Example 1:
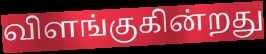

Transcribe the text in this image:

விளங்குகின்றது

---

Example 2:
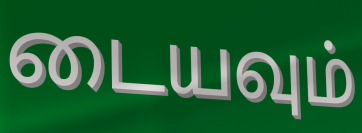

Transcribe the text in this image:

டையவும்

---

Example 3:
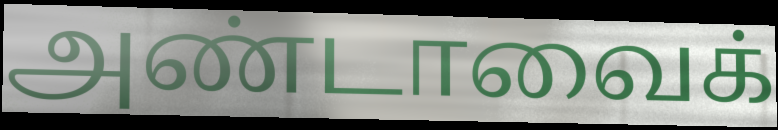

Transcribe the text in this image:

அண்டாவைக்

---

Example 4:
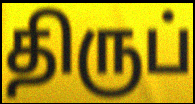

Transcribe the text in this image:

திருப்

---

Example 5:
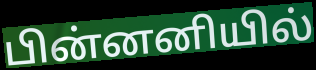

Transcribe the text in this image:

பின்னனியில்